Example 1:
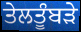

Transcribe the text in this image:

ਤੇਲਤੂੰਬੜੇ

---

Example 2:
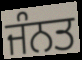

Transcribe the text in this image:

ਜੰਨਤ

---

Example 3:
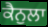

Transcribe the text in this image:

ਕੈਨੁਲਾ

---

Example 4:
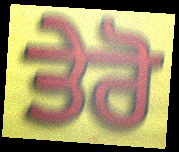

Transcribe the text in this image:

ਤੇਰੋ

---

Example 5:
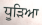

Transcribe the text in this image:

ਧੂੜਿਆ